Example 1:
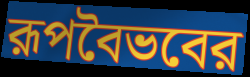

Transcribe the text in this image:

রূপবৈভবের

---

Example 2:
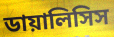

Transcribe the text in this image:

ডায়ালিসিস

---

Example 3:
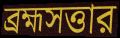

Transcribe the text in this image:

ব্রহ্মসত্তার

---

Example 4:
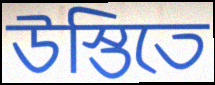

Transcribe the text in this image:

উস্তিতে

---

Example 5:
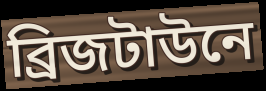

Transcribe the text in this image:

ব্রিজটাউনে